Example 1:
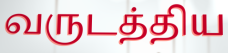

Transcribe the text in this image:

வருடத்திய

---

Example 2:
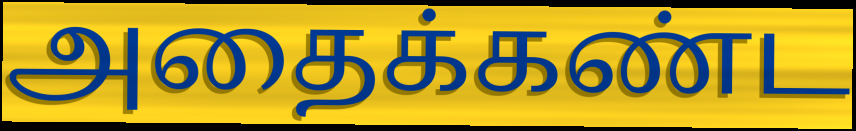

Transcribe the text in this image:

அதைக்கண்ட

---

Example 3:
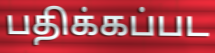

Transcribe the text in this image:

பதிக்கப்பட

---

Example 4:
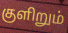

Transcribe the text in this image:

குளிறும்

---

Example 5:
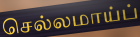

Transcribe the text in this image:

செல்லமாய்ப்